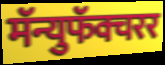
मॅन्युफॅक्चरर